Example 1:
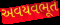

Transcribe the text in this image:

અવયવભૂત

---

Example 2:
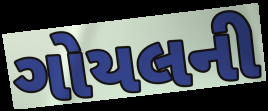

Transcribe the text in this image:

ગોયલની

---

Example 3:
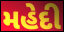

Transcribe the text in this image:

મહેદી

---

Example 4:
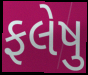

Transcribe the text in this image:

ફલેષુ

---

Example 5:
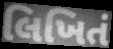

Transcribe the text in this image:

લિખિતં